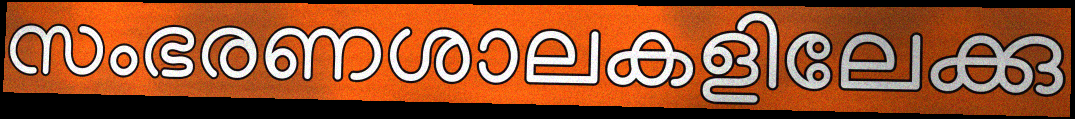
സംഭരണശാലകളിലേക്കു